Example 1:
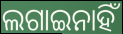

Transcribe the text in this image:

ଲଗାଇନାହିଁ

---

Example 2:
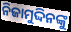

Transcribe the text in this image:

ନିଜାମୁଦ୍ଦିନଙ୍କୁ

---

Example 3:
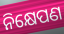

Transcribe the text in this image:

ନିକ୍ଷେପଣ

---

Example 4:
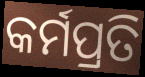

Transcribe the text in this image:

କର୍ମପ୍ରତି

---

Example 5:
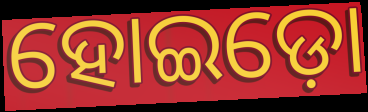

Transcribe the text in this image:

ହୋଇଡ଼ୋ